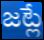
జట్లే